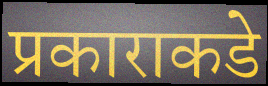
प्रकाराकडे